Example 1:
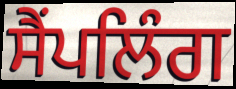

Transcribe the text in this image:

ਸੈਂਪਲਿੰਗ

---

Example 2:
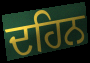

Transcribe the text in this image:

ਦਹਿਨ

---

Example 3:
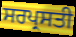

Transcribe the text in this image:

ਸਰਪ੍ਰਸਤੀ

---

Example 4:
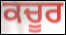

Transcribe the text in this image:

ਕਚੂਰ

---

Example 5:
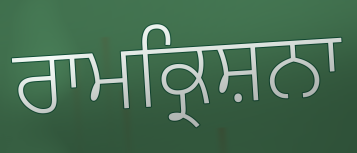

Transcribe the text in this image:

ਰਾਮਕ੍ਰਿਸ਼ਨਾ